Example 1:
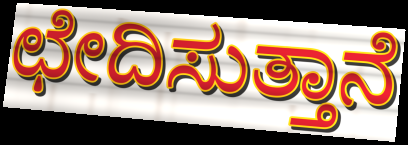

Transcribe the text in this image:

ಛೇದಿಸುತ್ತಾನೆ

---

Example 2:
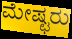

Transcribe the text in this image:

ಮೇಷ್ಟರು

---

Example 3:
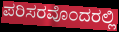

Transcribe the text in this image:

ಪರಿಸರವೊಂದರಲ್ಲಿ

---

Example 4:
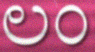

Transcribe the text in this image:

ಲಂ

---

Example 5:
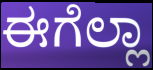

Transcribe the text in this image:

ಈಗೆಲ್ಲಾ